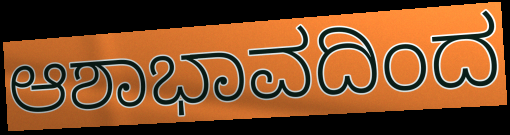
ಆಶಾಭಾವದಿಂದ